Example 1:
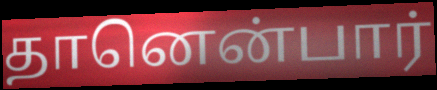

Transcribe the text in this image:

தானென்பார்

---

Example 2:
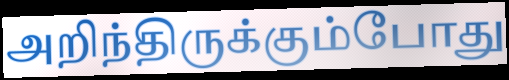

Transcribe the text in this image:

அறிந்திருக்கும்போது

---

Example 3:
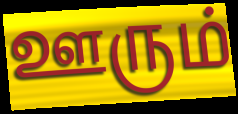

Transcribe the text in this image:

ஊரும்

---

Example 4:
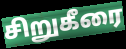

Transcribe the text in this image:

சிறுகீரை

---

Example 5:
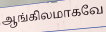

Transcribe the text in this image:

ஆங்கிலமாகவே